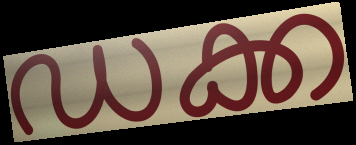
ഡക്ക